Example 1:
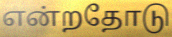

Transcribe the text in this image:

என்றதோடு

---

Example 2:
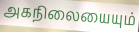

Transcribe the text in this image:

அகநிலையையும்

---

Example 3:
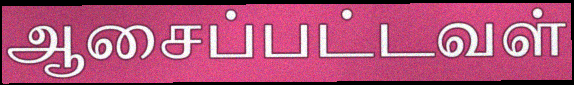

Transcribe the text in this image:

ஆசைப்பட்டவள்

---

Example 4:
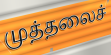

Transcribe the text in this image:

முத்தலைச்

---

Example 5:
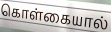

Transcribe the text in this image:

கொள்கையால்